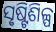
ସୃଷ୍ଟିଶିଳ୍ପ